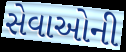
સેવાઓની